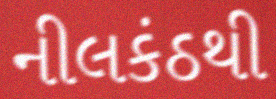
નીલકંઠથી